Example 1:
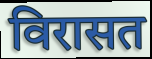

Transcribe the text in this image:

विरासत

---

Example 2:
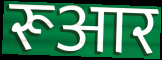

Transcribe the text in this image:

रूआर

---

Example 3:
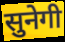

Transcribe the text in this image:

सुनेगी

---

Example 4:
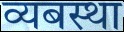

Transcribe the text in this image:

व्यबस्था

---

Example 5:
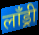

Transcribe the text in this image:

लॉंड्री